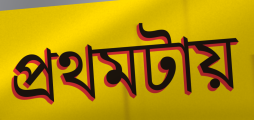
প্রথমটায়